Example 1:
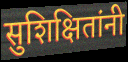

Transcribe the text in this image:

सुशिक्षितांनी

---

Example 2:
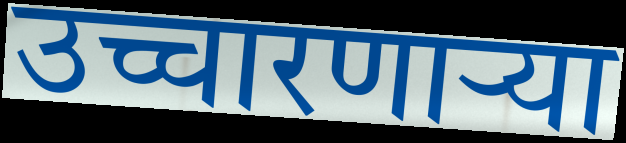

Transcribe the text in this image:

उच्चारणाऱ्या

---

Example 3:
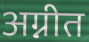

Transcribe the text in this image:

अग्नीत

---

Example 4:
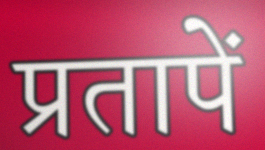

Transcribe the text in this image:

प्रतापें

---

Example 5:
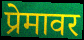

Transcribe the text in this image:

प्रेमावर